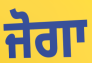
ਜੋਗਾ